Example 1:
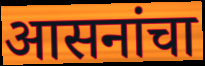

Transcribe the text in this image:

आसनांचा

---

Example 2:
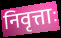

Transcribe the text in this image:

निवृत्ताः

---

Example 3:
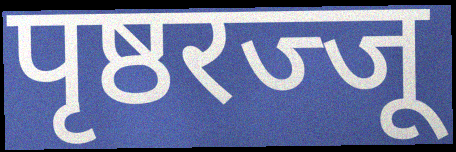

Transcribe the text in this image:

पृष्ठरज्जू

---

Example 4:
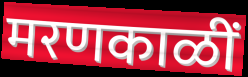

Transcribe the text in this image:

मरणकाळीं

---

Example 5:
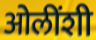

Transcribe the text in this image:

ओलींशी